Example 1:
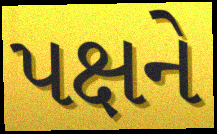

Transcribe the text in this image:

પક્ષને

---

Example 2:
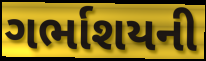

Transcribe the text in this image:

ગર્ભાશયની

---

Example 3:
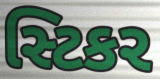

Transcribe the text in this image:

સ્ટિકર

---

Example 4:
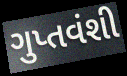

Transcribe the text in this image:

ગુપ્તવંશી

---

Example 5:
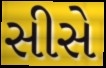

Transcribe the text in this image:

સીસે